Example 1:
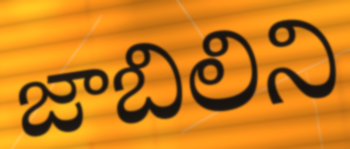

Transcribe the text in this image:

జాబిలిని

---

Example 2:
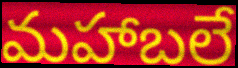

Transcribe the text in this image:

మహాబలే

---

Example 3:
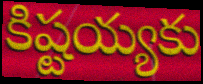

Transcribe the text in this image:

కిష్టయ్యకు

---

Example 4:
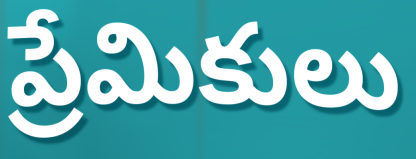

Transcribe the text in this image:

ప్రేమికులు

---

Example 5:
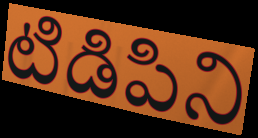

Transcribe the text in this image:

టిడిపిని